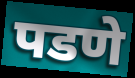
पडणे